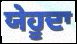
ਯੇਹੂਦਾ